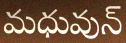
మధువున్